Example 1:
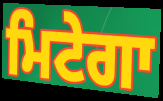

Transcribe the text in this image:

ਮਿਟੇਗਾ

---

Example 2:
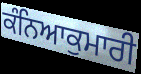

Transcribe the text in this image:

ਕੰਨਿਆਕੁਮਾਰੀ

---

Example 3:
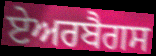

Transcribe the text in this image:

ਏਅਰਬੈਗਸ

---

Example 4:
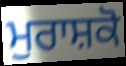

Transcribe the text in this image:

ਮੁਰਾਸ਼ਕੋ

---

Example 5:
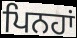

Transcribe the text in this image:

ਪਿਨਹਾਂ